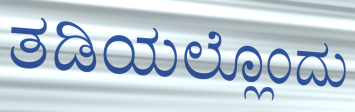
ತಡಿಯಲ್ಲೊಂದು